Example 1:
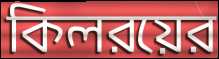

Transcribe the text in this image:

কিলরয়ের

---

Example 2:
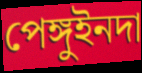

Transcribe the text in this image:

পেঙ্গুইনদা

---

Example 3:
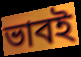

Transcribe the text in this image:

ভাবই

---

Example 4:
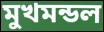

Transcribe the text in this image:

মুখমন্ডল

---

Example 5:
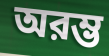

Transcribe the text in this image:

অরম্ভ